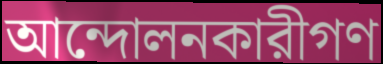
আন্দোলনকারীগণ